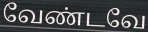
வேண்டவே